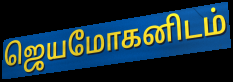
ஜெயமோகனிடம்